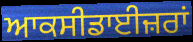
ਆਕਸੀਡਾਈਜ਼ਰਾਂ